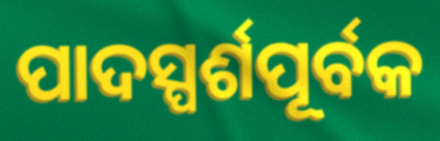
ପାଦସ୍ପର୍ଶପୂର୍ବକ